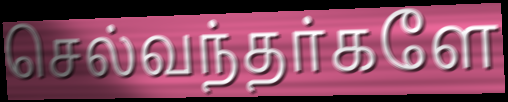
செல்வந்தர்களே